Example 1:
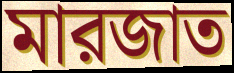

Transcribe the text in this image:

মারজাত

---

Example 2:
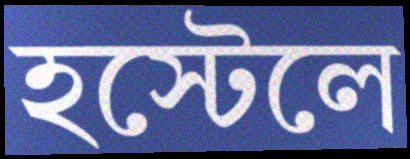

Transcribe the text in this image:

হস্টেলে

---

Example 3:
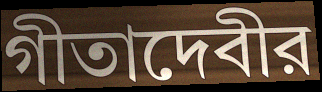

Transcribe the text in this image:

গীতাদেবীর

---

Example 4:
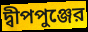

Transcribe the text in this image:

দ্বীপপুঞ্জের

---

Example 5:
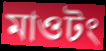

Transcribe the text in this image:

মাওটং